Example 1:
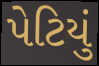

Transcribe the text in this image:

પેટિયું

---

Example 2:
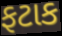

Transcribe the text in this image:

ફટાક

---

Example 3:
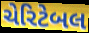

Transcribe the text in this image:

ચેરિટેબલ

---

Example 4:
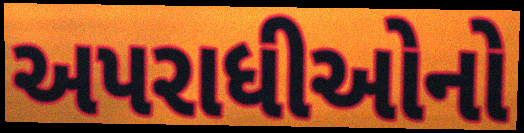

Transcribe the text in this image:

અપરાધીઓનો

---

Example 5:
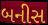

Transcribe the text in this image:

બનીસ